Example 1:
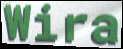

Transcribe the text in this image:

Wira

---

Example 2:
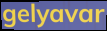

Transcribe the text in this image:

gelyavar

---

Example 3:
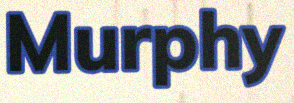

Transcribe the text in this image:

Murphy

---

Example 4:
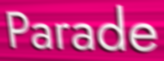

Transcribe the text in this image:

Parade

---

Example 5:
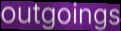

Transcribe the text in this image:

outgoings